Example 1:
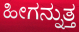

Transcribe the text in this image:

ಹೀಗನ್ನುತ್ತ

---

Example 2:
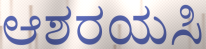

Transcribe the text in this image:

ಆಶರಯಸಿ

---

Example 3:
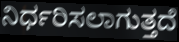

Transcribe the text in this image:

ನಿರ್ಧರಿಸಲಾಗುತ್ತದೆ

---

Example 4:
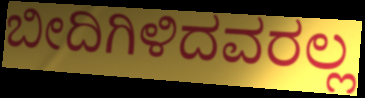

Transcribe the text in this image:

ಬೀದಿಗಿಳಿದವರಲ್ಲ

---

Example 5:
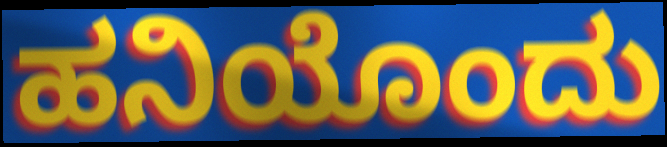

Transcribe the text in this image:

ಹನಿಯೊಂದು